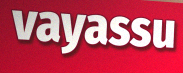
vayassu